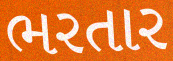
ભરતાર